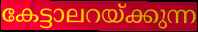
കേട്ടാലറയ്ക്കുന്ന